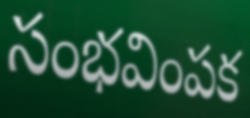
సంభవింపక